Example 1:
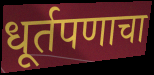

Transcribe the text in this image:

धूर्तपणाचा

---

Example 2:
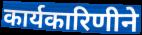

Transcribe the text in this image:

कार्यकारिणीने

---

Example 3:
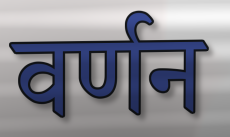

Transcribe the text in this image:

वर्णन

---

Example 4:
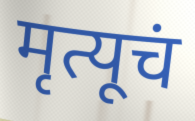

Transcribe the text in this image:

मृत्यूचं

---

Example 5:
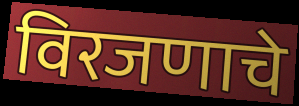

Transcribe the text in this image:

विरजणाचे